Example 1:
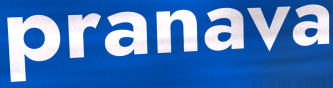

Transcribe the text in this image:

pranava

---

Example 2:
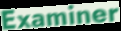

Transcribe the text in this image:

Examiner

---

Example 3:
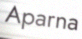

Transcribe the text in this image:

Aparna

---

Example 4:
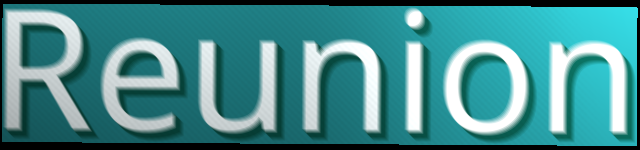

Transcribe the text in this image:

Reunion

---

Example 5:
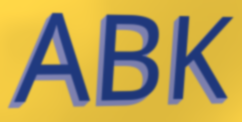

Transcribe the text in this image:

ABK